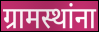
ग्रामस्थांना